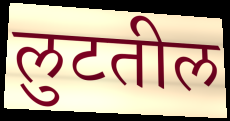
लुटतील